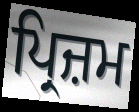
ਪ੍ਰਿਜ਼ਮ